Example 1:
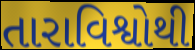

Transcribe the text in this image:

તારાવિશ્વોથી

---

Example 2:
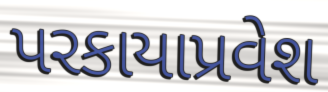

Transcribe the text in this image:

પરકાયાપ્રવેશ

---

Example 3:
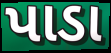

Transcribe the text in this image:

પાડા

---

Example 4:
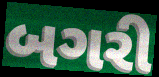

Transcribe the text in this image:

બગરી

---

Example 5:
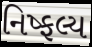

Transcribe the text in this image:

નિષ્ફલ્ય